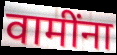
वामींना